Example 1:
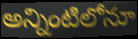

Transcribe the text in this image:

అన్నింటిలోనూ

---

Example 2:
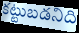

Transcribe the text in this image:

కట్టుబడనిది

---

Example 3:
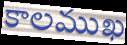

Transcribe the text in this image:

కాలముఖ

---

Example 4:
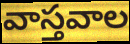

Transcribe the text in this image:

వాస్తవాల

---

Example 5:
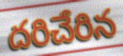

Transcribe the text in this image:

దరిచేరిన